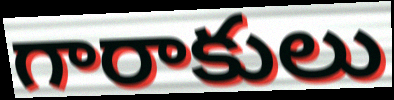
గారాకులు